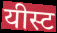
यीस्ट